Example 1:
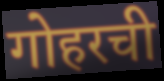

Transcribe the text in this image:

गोहरची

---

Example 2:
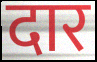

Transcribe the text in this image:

दार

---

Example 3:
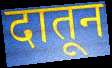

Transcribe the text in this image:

दातून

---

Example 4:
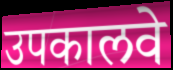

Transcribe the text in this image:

उपकालवे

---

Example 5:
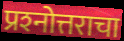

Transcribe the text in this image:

प्रश्‍नोत्तराचा